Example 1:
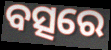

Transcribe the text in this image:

ବତ୍ସରେ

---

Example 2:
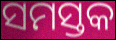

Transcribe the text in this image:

ସମସ୍ତକ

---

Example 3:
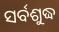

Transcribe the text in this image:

ସର୍ବଶୁଦ୍ଧ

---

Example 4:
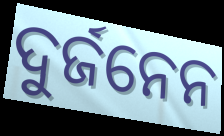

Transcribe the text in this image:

ଦୁର୍ଜନେନ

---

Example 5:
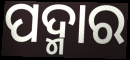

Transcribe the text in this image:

ପଦ୍ମାର